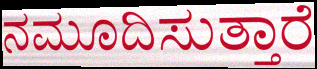
ನಮೂದಿಸುತ್ತಾರೆ